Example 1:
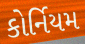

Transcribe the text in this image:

કોર્નિયમ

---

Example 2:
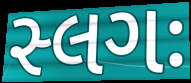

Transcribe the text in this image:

સ્લગઃ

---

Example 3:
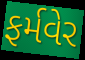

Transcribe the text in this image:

ફર્મવેર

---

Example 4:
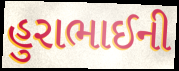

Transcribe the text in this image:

હુરાભાઈની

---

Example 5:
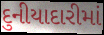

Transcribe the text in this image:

દુનીયાદારીમાં